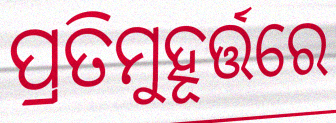
ପ୍ରତିମୁହୂର୍ତ୍ତରେ